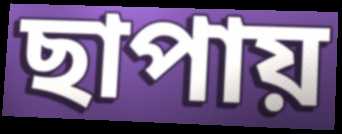
ছাপায়